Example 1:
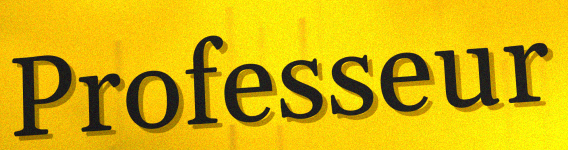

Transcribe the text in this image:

Professeur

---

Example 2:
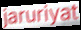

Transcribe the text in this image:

jaruriyat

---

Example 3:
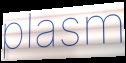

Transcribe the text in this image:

plasm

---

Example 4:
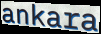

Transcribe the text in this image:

ankara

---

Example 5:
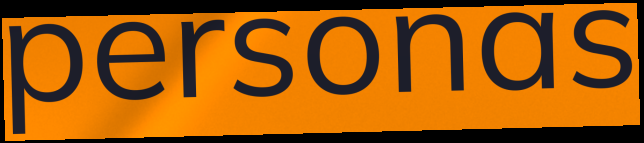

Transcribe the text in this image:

personas